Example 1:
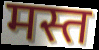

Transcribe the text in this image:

मस्त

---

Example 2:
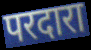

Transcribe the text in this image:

परदारा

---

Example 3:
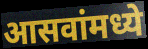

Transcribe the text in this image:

आसवांमध्ये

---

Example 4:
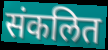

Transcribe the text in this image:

संकलित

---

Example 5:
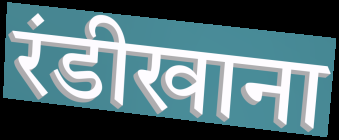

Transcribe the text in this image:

रंडीखाना